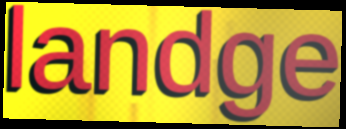
landge